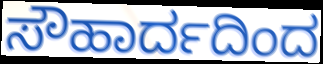
ಸೌಹಾರ್ದದಿಂದ